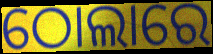
ଠୋଲାରେ